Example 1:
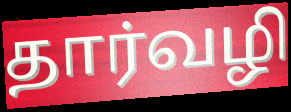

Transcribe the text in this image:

தார்வழி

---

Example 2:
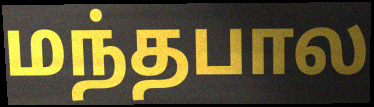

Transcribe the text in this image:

மந்தபால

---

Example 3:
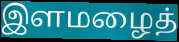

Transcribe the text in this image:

இளமழைத்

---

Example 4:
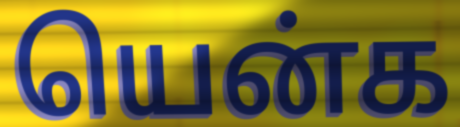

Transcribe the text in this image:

யென்க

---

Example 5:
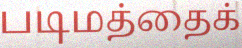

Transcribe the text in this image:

படிமத்தைக்